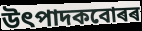
উৎপাদকবোৰৰ